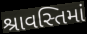
શ્રાવસ્તિમાં